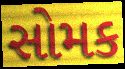
સોમક